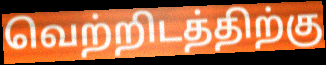
வெற்றிடத்திற்கு